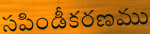
సపిండీకరణము